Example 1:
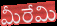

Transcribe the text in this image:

మీరేమి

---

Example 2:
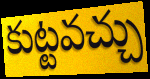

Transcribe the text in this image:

కుట్టవచ్చు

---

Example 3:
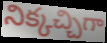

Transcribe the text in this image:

నిక్కచ్చిగా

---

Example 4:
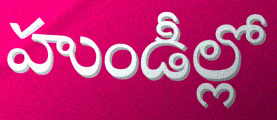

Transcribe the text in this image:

హుండీల్లో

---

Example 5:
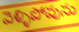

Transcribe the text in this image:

వెళ్ళిపోవును